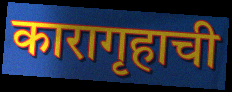
कारागृहाची